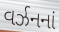
વર્ઝનનાં